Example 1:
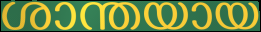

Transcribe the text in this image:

ശാന്തയായ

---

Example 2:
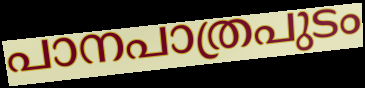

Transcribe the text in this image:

പാനപാത്രപുടം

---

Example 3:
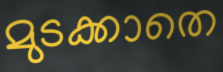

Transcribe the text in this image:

മുടക്കാതെ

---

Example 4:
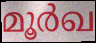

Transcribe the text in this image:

മൂർഖ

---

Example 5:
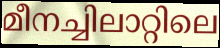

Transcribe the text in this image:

മീനച്ചിലാറ്റിലെ